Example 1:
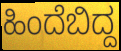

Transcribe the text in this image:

ಹಿಂದೆಬಿದ್ದ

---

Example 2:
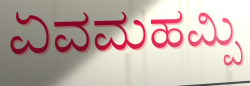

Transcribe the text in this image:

ಏವಮಹಮ್ಪಿ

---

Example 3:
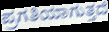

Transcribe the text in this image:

ಪ್ರಗತಿಯಾಗುತ್ತದೆ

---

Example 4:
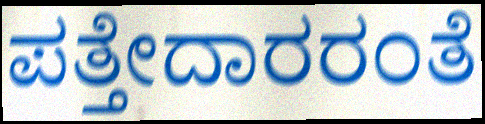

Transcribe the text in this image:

ಪತ್ತೇದಾರರಂತೆ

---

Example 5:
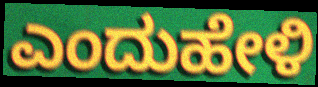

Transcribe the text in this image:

ಎಂದುಹೇಳಿ